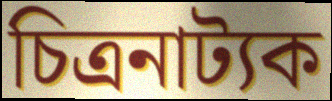
চিত্ৰনাট্যক